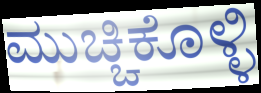
ಮುಚ್ಚಿಕೊಳ್ಳಿ